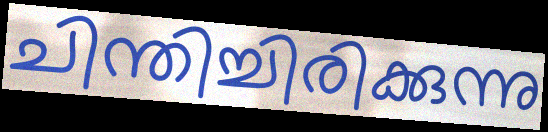
ചിന്തിച്ചിരിക്കുന്നു